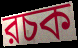
রচক